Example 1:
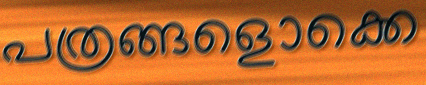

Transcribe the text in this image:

പത്രങ്ങളൊക്കെ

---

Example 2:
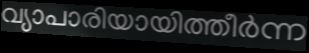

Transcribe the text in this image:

വ്യാപാരിയായിത്തീർന്ന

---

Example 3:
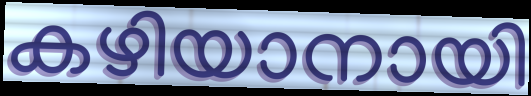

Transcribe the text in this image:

കഴിയാനായി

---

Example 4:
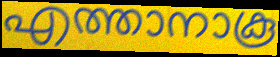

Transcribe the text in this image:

എത്താനാകൂ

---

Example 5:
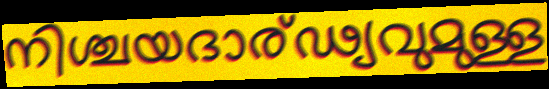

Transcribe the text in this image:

നിശ്ചയദാര്ഢ്യവുമുള്ള